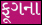
ફૂગના